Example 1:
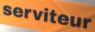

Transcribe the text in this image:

serviteur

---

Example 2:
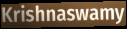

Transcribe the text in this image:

Krishnaswamy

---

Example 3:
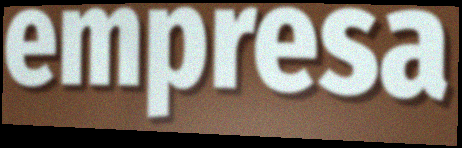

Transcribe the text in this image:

empresa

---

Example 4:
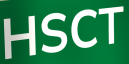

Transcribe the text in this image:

HSCT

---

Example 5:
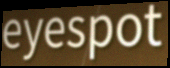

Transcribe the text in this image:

eyespot